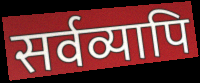
सर्वव्यापि